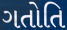
ગતોતિ